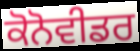
ਕੋਨੋਵੀਡਰ